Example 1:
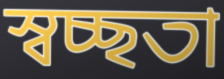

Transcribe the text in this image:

স্বচ্ছতা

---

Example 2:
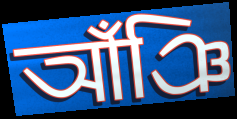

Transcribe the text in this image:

আঁঞি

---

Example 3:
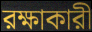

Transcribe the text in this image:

রক্ষাকারী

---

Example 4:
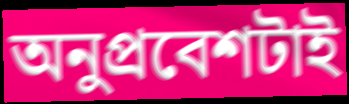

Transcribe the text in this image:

অনুপ্রবেশটাই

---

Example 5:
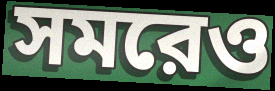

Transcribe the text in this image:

সমরেও